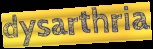
dysarthria